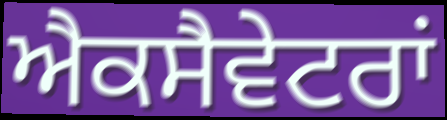
ਐਕਸੈਵੇਟਰਾਂ